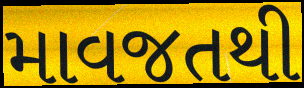
માવજતથી